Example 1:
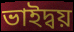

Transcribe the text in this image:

ভাইদ্বয়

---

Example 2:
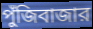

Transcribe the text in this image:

পুঁজিবাজার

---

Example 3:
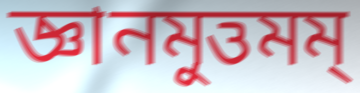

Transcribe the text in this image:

জ্ঞানমুত্তমম্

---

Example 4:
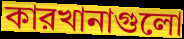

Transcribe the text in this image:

কারখানাগুলো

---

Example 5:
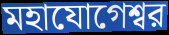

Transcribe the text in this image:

মহাযোগেশ্বর